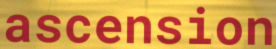
ascension